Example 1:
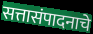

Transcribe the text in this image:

सत्तासंपादनाचे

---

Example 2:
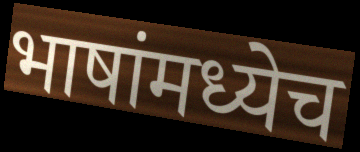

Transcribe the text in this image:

भाषांमध्येच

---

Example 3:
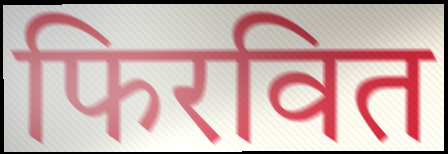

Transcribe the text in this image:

फिरवित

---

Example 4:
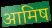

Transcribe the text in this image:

आमिष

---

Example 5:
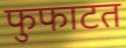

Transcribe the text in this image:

फुफाटत